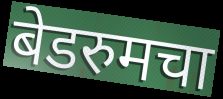
बेडरुमचा